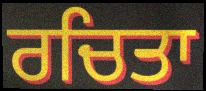
ਰਚਿਤਾ